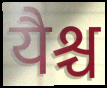
यैश्च